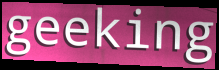
geeking